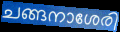
ചങ്ങനാശേരി